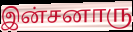
இன்சனாரு